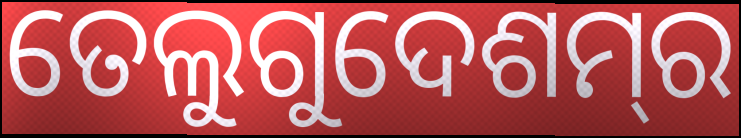
ତେଲୁଗୁଦେଶମ୍‌ର